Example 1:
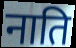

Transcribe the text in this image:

नाति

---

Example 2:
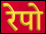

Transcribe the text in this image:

रेपो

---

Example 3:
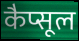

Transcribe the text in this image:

कैप्सूल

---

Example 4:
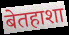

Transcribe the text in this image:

बेतहाशा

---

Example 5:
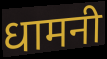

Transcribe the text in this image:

धामनी